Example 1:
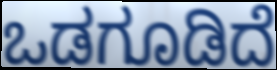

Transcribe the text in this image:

ಒಡಗೂಡಿದೆ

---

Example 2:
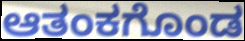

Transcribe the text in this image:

ಆತಂಕಗೊಂಡ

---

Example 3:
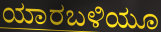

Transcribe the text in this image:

ಯಾರಬಳಿಯೂ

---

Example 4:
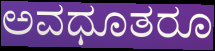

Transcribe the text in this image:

ಅವಧೂತರೂ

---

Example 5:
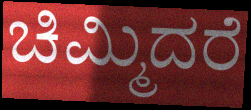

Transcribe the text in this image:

ಚಿಮ್ಮಿದರೆ